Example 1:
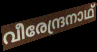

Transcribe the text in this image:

വീരേന്ദ്രനാഥ്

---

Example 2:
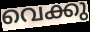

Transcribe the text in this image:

വെക്കു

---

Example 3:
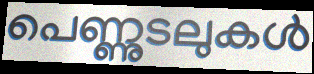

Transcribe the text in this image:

പെണ്ണുടലുകൾ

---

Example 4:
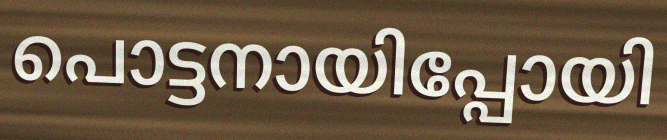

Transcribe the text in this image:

പൊട്ടനായിപ്പോയി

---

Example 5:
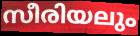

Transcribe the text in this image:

സീരിയലും